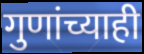
गुणांच्याही